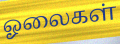
ஓலைகள்